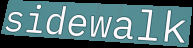
sidewalk